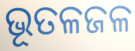
ଭୂତଳଜଳ